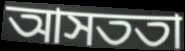
আসততা